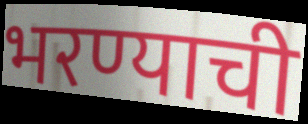
भरण्याची